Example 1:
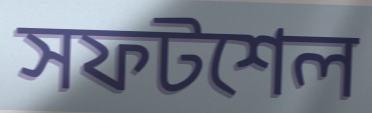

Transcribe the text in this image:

সফটশেল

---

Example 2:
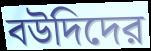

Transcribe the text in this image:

বউদিদের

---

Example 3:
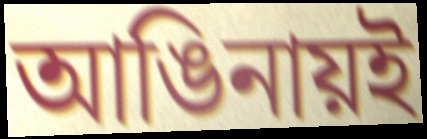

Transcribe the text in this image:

আঙিনায়ই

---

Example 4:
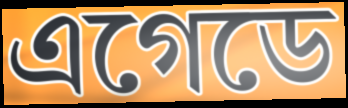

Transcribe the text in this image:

এগেডে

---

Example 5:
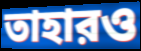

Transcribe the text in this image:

তাহারও